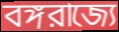
বঙ্গরাজ্যে